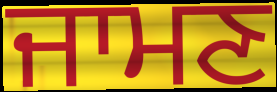
ਜਾਮਣ